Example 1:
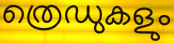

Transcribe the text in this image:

ത്രെഡുകളും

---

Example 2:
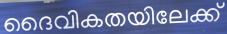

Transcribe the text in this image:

ദൈവികതയിലേക്ക്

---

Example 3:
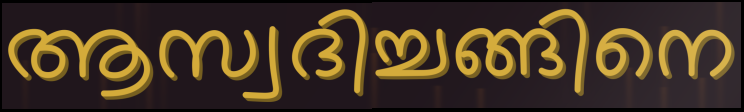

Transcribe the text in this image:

ആസ്വദിച്ചങ്ങിനെ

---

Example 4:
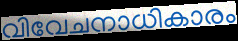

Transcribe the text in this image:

വിവേചനാധികാരം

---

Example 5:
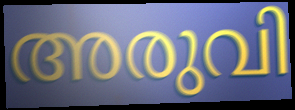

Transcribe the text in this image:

അരുവി